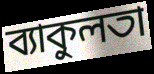
ব্যাকুলতা